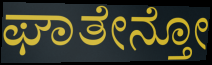
ಘಾತೇನ್ತೋ